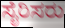
ಸೈರಿಸರು